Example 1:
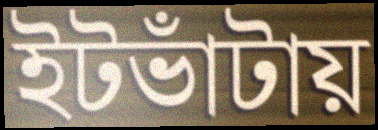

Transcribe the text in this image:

ইটভাঁটায়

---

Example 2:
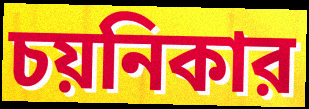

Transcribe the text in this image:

চয়নিকার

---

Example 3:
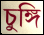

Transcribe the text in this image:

চুঙ্গি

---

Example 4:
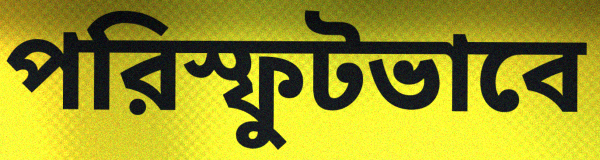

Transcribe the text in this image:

পরিস্ফুটভাবে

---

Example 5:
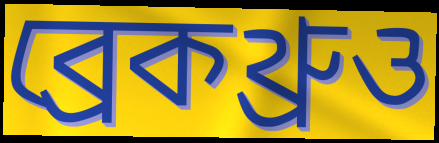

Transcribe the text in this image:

ব্রেকথ্রুও